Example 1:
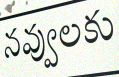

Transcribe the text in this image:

నవ్వులకు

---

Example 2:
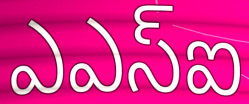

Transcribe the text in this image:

ఎఎస్ఐ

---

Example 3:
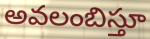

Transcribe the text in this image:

అవలంబిస్తూ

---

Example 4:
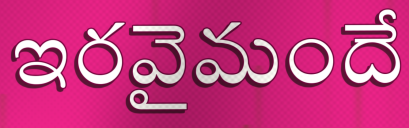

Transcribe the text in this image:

ఇరవైమందే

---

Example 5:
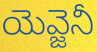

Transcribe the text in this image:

యెవ్జెనీ